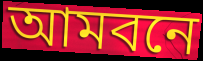
আমবনে